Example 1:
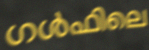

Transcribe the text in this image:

ഗൾഫിലെ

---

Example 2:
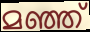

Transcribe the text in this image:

മഞ്ഞ്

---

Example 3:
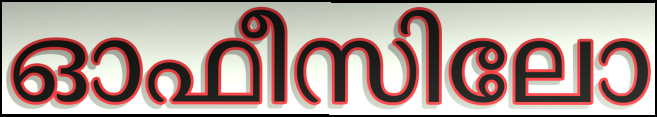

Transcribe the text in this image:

ഓഫീസിലോ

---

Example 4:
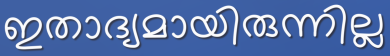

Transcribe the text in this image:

ഇതാദ്യമായിരുന്നില്ല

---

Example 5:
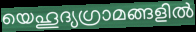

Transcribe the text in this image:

യെഹൂദ്യഗ്രാമങ്ങളിൽ